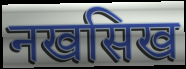
नखसिख